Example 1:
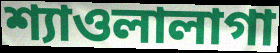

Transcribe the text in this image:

শ্যাওলালাগা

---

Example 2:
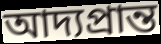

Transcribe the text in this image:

আদ্যপ্রান্ত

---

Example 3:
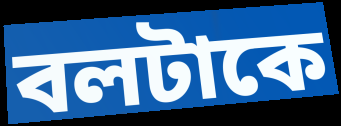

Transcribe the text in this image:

বলটাকে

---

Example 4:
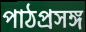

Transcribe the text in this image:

পাঠপ্রসঙ্গ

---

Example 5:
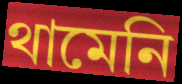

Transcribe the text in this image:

থামেনি